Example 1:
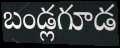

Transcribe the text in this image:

బండ్లగూడ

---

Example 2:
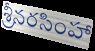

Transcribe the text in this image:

శ్రీనరసింహా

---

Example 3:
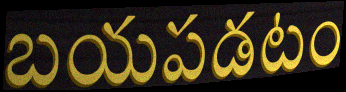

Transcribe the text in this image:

బయపడటం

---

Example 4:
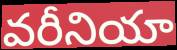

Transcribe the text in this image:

వరీనియా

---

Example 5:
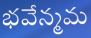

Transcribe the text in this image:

భవేన్మమ